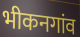
भीकनगांव